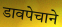
डावपेचाने